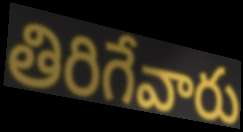
తిరిగేవారు